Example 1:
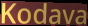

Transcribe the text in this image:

Kodava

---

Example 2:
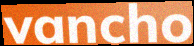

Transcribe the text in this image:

vancho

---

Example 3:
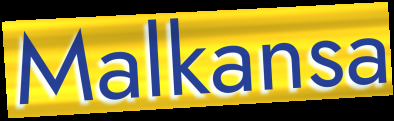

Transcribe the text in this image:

Malkansa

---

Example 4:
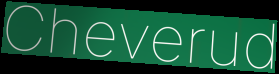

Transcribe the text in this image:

Cheverud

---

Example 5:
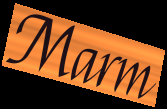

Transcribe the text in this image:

Marm